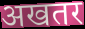
अखतर